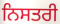
ਨਿਸਤਰੀ